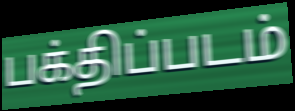
பக்திப்படம்